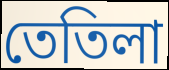
তেতিলা